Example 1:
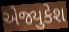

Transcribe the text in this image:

એજ્યુકેશ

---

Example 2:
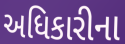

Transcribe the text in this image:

અધિકારીના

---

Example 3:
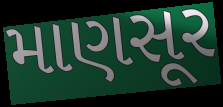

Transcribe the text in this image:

માણસૂર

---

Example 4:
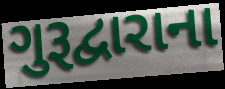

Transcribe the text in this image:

ગુરૂદ્વારાના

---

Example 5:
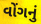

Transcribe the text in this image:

વોંગનું